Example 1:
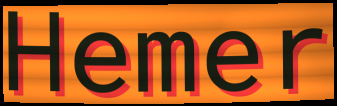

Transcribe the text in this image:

Hemer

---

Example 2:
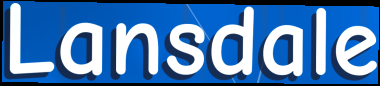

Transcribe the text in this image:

Lansdale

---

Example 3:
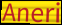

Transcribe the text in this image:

Aneri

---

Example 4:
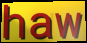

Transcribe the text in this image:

haw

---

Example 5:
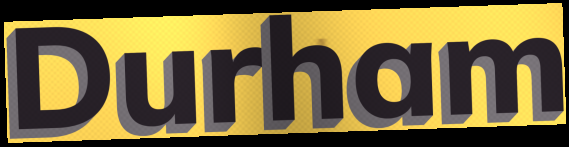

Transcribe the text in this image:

Durham